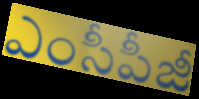
ఎంసీపీజీ